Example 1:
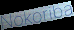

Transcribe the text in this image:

Nokoriba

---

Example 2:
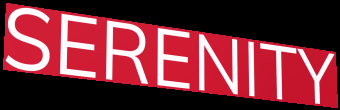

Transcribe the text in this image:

SERENITY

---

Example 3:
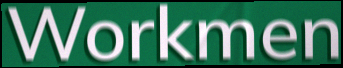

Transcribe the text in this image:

Workmen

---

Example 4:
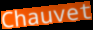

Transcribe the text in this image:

Chauvet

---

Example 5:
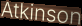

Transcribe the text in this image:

Atkinson